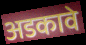
अडकावे